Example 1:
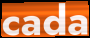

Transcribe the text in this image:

cada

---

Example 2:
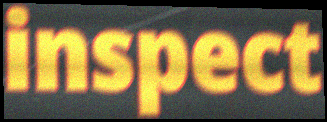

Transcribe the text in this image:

inspect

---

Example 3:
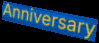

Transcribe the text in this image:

Anniversary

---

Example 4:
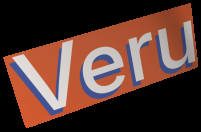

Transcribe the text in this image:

Veru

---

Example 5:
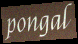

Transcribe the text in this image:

pongal